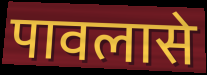
पावलासे